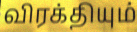
விரக்தியும்